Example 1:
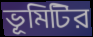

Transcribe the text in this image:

ভূমিটির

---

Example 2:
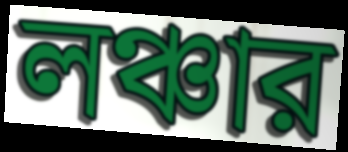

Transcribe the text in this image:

লঞ্চার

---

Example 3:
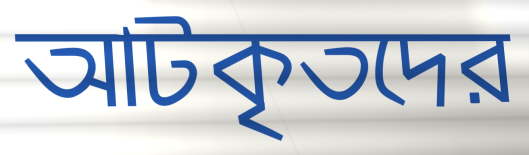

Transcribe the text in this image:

আটকৃতদের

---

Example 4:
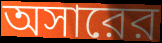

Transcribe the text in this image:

অসারের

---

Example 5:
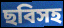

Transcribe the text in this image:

ছবিসহ